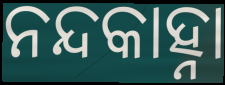
ନନ୍ଦକାହ୍ନା